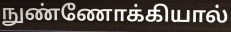
நுண்ணோக்கியால்